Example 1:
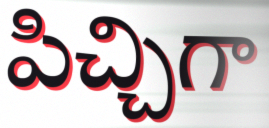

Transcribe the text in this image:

పిచ్చిగా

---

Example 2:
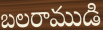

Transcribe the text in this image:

బలరాముడి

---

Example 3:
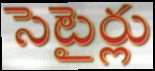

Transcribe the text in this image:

సెటైర్లు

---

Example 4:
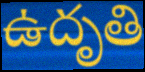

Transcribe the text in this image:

ఉదృతి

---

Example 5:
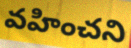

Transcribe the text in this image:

వహించని